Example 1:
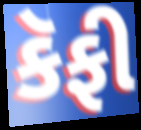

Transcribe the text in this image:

કૅફી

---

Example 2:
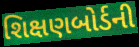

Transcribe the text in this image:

શિક્ષણબોર્ડની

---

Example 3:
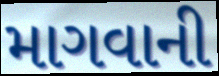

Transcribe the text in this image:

માગવાની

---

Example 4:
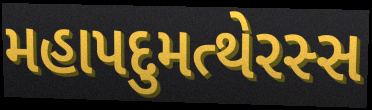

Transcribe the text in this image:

મહાપદુમત્થેરસ્સ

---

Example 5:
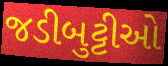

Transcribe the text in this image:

જડીબુટ્ટીઓ